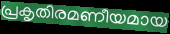
പ്രകൃതിരമണീയമായ